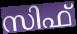
സിഫ്